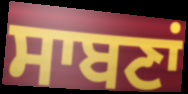
ਸਾਬਣਾਂ